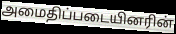
அமைதிப்படையினரின்